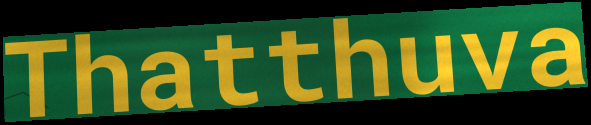
Thatthuva